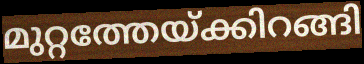
മുറ്റത്തേയ്ക്കിറങ്ങി